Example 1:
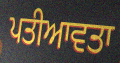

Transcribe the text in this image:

ਪਤੀਆਵਤਾ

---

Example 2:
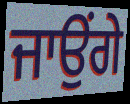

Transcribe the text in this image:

ਜਾਉਂਗੇ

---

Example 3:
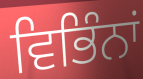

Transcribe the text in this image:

ਵਿਭਿੰਨਾਂ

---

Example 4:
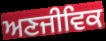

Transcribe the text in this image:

ਅਣਜੀਵਿਕ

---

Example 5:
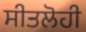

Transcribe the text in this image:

ਸੀਤਲੋਹੀ